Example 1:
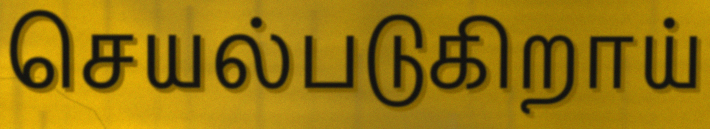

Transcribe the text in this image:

செயல்படுகிறாய்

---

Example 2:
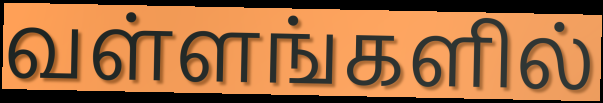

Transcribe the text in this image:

வள்ளங்களில்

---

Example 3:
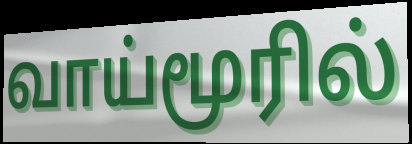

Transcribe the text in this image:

வாய்மூரில்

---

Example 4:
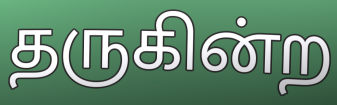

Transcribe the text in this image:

தருகின்ற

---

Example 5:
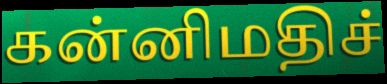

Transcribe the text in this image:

கன்னிமதிச்